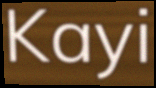
Kayi